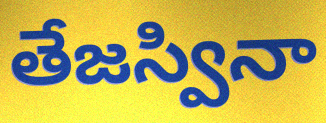
తేజస్వినా